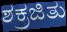
ಶಕ್ರಜಿತು